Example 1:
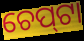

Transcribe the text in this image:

ଚେପ୍‌ଟା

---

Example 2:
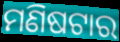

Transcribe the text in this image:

ମଣିଷଟାର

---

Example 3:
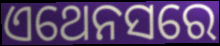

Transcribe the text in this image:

ଏଥେନସରେ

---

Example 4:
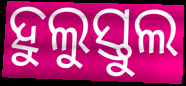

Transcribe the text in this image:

ହୁଲୁସ୍ତୁଲ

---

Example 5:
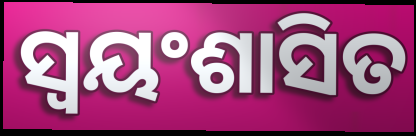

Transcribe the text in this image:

ସ୍ବୟଂଶାସିତ